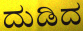
ದುಡಿದ